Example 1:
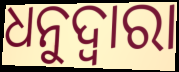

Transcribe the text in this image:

ଧନୁଦ୍ୱାରା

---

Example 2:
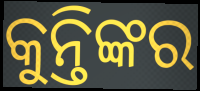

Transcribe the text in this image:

କୁନ୍ତିଙ୍କର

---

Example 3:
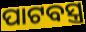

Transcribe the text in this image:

ପାଟବସ୍ତ୍ର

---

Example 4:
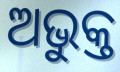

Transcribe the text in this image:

ଅଭୁକ୍ତ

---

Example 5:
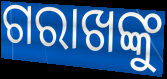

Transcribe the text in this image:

ଗରାଖଙ୍କୁ